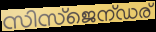
സിസ്ജെന്ഡര്